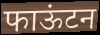
फाऊंटन